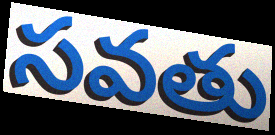
సవతు